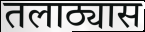
तलाठ्यास